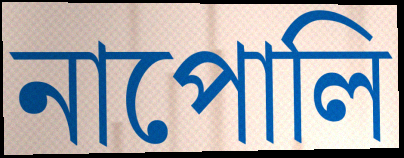
নাপোলি